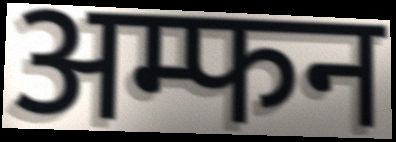
अम्फन